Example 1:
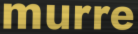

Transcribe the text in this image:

murre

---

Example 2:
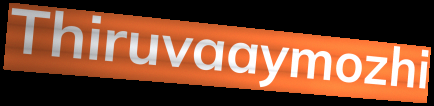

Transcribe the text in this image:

Thiruvaaymozhi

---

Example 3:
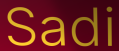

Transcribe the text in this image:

Sadi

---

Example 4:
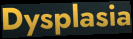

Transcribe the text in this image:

Dysplasia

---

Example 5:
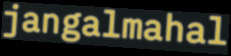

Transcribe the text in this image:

jangalmahal